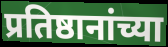
प्रतिष्ठानांच्या